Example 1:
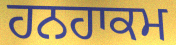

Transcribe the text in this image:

ਹਨਹਾਕਮ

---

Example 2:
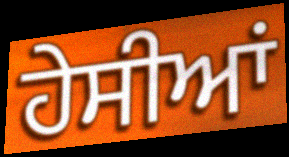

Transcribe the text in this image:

ਹੇਸੀਆਂ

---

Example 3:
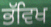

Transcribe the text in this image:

ਭੱਵਿਖ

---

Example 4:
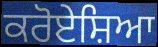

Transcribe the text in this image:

ਕਰੋਏਸ਼ਿਆ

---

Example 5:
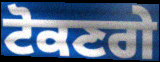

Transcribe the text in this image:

ਟੋਕਣਗੇ